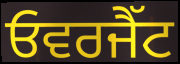
ਓਵਰਜੈੱਟ